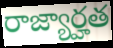
రాజ్యార్హత